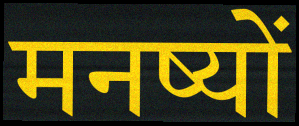
मनष्यों